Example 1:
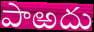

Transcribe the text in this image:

పాఱదు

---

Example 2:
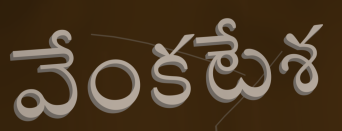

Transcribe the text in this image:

వేంకటేశ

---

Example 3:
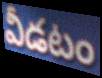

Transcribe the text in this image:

వీడటం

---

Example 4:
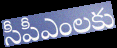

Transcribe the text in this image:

సీపీఎంలకు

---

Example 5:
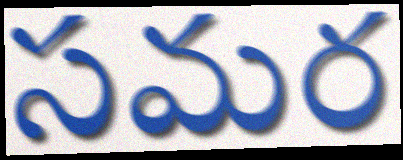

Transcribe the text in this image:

సమర